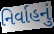
નિર્વાહનું